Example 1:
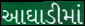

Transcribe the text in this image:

આઘાડીમાં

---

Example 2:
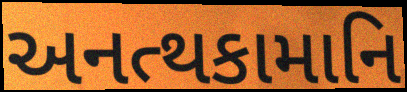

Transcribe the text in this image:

અનત્થકામાનિ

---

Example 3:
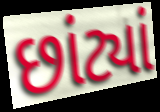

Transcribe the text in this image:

છાંટ્યાં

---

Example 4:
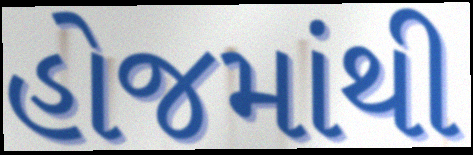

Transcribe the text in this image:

હોજમાંથી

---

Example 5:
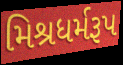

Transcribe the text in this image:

મિશ્રધર્મરૂપ